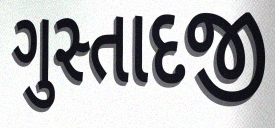
ગુસ્તાદજી